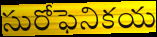
సురోఫెనికయ